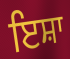
ਇਸ਼ਾ